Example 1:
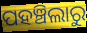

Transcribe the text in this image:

ପହଞ୍ଚିଲାରୁ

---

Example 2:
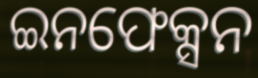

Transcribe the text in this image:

ଇନଫେକ୍ସନ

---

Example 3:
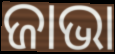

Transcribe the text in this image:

ଜାଭା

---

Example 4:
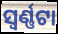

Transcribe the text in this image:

ସ୍ୱର୍ଣ୍ଣଟା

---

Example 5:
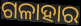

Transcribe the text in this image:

ଗଳାହାର